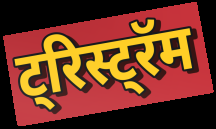
ट्रिस्ट्रॅम